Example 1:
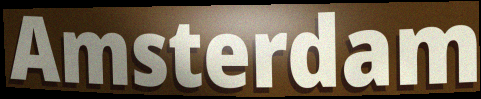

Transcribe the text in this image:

Amsterdam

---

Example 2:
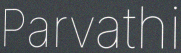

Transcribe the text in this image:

Parvathi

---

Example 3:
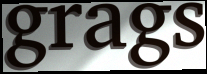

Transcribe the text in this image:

grags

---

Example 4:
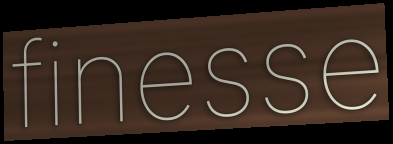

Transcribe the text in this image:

finesse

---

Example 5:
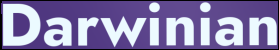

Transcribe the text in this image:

Darwinian